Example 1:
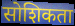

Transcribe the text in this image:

सोशिकता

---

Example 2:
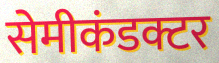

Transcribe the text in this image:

सेमीकंडक्टर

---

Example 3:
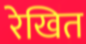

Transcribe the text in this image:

रेखित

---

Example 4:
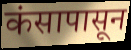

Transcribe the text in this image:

कंसापासून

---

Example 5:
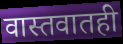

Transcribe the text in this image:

वास्तवातही